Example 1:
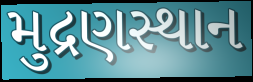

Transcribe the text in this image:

મુદ્રણસ્થાન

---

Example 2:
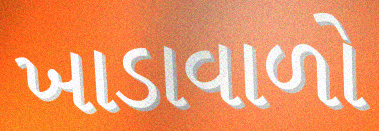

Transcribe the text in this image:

ખાડાવાળો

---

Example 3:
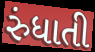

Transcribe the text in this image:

રુંધાતી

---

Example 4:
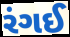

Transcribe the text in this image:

રંગઈ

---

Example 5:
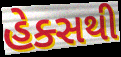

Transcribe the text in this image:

હેક્સથી